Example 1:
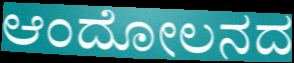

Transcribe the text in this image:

ಆಂದೋಲನದ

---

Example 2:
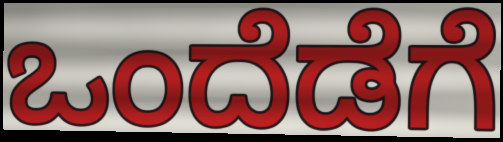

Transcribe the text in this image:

ಒಂದೆಡೆಗೆ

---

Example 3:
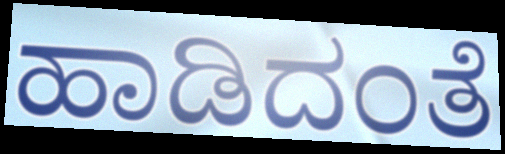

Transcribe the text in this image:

ಹಾಡಿದಂತೆ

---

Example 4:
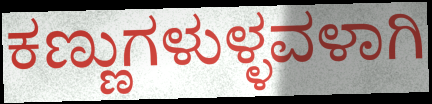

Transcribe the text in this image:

ಕಣ್ಣುಗಳುಳ್ಳವಳಾಗಿ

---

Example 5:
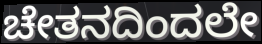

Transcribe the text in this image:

ಚೇತನದಿಂದಲೇ